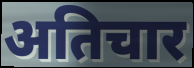
अतिचार